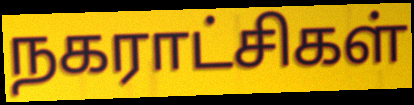
நகராட்சிகள்